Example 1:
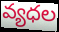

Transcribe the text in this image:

వ్యధల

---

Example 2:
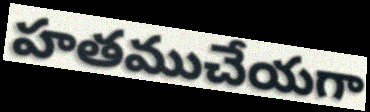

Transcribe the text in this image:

హతముచేయగా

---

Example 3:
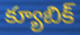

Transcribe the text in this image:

క్యూబిక్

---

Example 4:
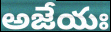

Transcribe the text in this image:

అజేయః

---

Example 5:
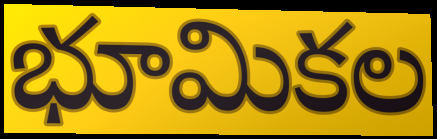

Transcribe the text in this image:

భూమికల